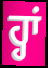
ਹ੍ਹਾਂ